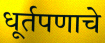
धूर्तपणाचे